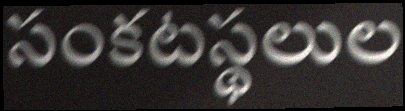
సంకటస్థలుల